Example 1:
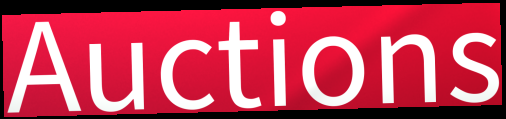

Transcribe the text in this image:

Auctions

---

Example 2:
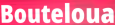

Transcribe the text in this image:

Bouteloua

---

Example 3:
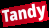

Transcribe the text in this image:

Tandy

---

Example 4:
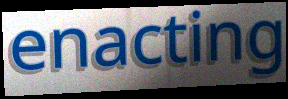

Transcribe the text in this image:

enacting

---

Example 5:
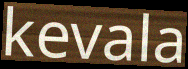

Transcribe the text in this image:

kevala